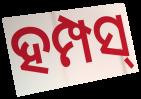
ହମ୍ପସ୍